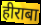
हीराबा